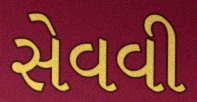
સેવવી